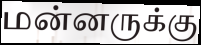
மன்னருக்கு